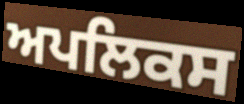
ਅਪਲਿਕਸ